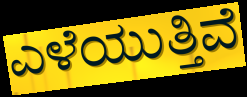
ಎಳೆಯುತ್ತಿವೆ